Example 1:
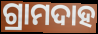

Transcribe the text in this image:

ଗ୍ରାମଦାହ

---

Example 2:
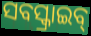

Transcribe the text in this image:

ସବସ୍କ୍ରାଇବ୍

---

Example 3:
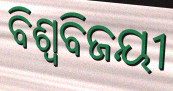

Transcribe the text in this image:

ବିଶ୍ବବିଜୟୀ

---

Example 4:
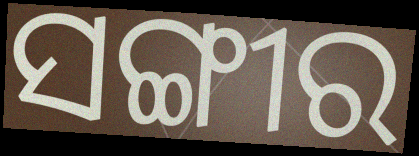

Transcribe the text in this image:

ସଙ୍ଗୀର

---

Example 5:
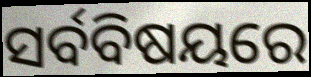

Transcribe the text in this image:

ସର୍ବବିଷୟରେ